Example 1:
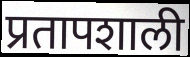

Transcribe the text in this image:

प्रतापशाली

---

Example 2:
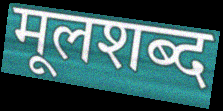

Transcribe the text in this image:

मूलशब्द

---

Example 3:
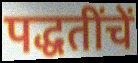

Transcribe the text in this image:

पद्धतींचें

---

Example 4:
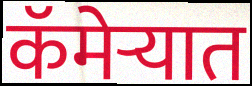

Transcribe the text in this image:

कॅमेर्‍यात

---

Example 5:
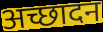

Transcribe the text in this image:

अच्छादन